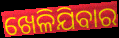
ଖେଳିଯିବାର